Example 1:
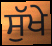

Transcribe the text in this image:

ਸੁੱਖੇ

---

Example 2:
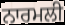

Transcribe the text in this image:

ਨਾਰਮਲੀ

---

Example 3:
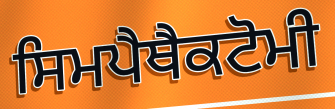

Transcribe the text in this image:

ਸਿਮਪੈਥੈਕਟੋਮੀ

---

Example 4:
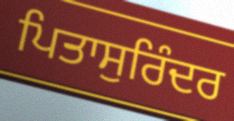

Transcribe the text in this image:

ਪਿਤਾਸੁਰਿੰਦਰ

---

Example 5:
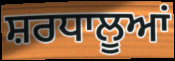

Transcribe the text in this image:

ਸ਼ਰਧਾਲੂਆਂ